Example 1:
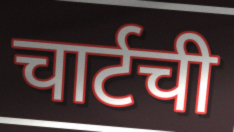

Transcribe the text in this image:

चार्टची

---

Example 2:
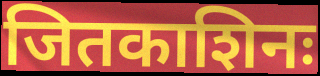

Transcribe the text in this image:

जितकाशिनः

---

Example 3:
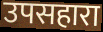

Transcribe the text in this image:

उपसहारा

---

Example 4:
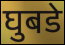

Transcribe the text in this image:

घुबडे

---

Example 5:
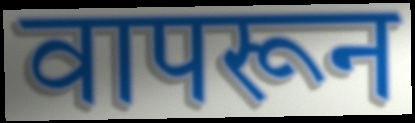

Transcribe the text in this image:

वापरून